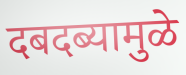
दबदब्यामुळे